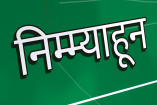
निम्म्याहून